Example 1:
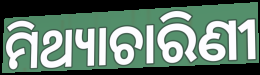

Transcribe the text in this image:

ମିଥ୍ୟାଚାରିଣୀ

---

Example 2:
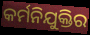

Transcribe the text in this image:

କର୍ମନିଯୁକ୍ତିର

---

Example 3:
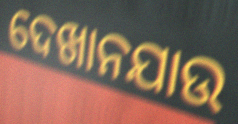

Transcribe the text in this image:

ଦେଖାନଯାଉ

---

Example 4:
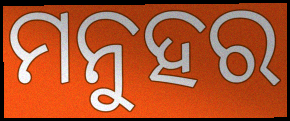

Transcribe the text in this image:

ମନୁହର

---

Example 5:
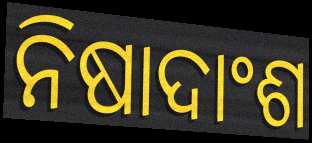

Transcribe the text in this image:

ନିଷାଦାଂଶ